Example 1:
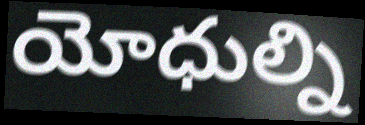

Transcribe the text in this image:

యోధుల్ని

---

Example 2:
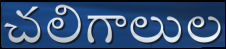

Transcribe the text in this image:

చలిగాలుల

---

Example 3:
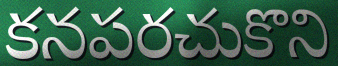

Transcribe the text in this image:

కనపరచుకొని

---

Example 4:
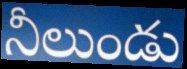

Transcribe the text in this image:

నీలుండు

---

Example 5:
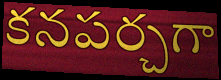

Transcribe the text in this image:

కనపర్చగా